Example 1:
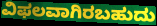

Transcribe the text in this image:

ವಿಫಲವಾಗಿರಬಹುದು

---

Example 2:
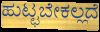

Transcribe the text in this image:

ಹುಟ್ಟಬೇಕಲ್ಲದೆ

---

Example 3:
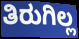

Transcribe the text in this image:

ತಿರುಗಿಲ್ಲ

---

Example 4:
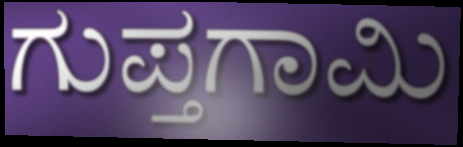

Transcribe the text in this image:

ಗುಪ್ತಗಾಮಿ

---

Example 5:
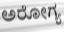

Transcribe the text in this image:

ಅರೋಗ್ಯ